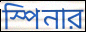
স্পিনার